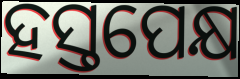
ହସ୍ତପେକ୍ଷ